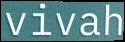
vivah